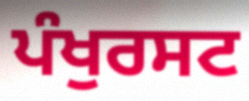
ਪੰਖੁਰਸਟ